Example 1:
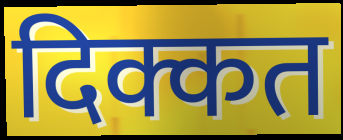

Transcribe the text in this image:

दिक्कत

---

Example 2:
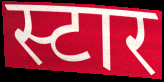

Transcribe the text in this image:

स्टार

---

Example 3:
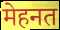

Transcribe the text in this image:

मेहनत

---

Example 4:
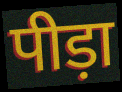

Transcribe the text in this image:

पीड़ा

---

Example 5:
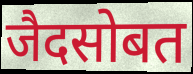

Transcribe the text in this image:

जैदसोबत